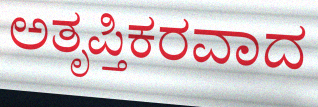
ಅತೃಪ್ತಿಕರವಾದ